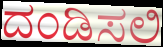
ದಂಡಿಸಲಿ